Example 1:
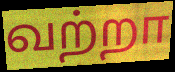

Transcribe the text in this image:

வற்றா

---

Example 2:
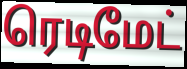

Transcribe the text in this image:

ரெடிமேட்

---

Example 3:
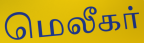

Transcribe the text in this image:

மெலீகர்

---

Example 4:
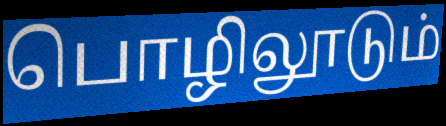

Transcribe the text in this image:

பொழிலூடும்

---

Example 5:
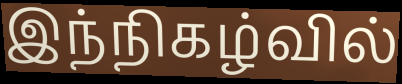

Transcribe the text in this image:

இந்நிகழ்வில்